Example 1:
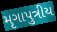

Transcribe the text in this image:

મૃગાપુત્રીય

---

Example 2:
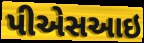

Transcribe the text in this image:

પીએસઆઇ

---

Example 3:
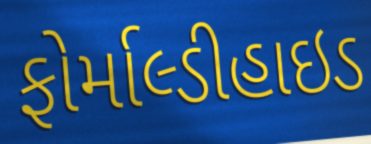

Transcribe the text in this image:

ફોર્માલ્ડીહાઇડ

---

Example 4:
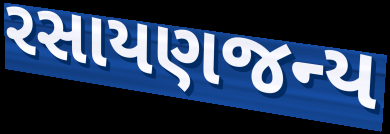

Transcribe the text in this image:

રસાયણજન્ય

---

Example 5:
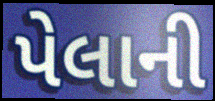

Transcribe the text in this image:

પેલાની